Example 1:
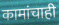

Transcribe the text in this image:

कामांचाही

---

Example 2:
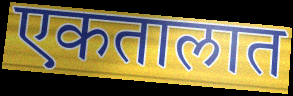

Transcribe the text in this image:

एकतालात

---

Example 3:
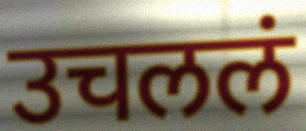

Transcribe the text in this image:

उचललं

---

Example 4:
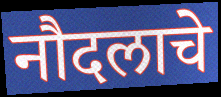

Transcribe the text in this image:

नौदलाचे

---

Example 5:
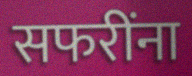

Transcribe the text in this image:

सफरींना